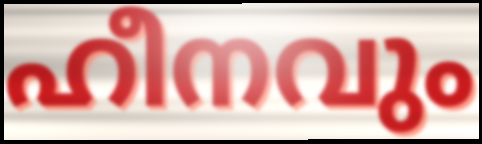
ഹീനവും